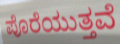
ಪೊರೆಯುತ್ತವೆ